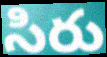
సిరు